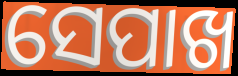
ସେପାଖ